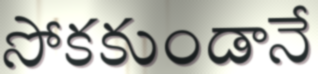
సోకకుండానే